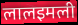
लालइमली